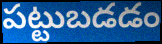
పట్టుబడడం